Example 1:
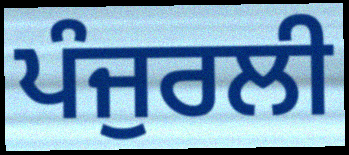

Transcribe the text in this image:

ਪੰਜੁਰਲੀ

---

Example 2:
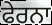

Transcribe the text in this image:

ਫੇਰਨਾ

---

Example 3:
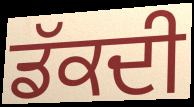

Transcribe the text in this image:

ਡੱਕਦੀ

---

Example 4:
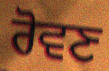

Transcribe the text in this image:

ਰੋਵਣ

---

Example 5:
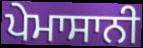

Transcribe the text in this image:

ਪੇਮਾਸਾਨੀ